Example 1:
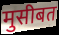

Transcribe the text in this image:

मुसीबत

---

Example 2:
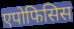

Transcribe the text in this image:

एपोफिसिस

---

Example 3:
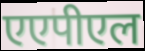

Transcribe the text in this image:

एएपीएल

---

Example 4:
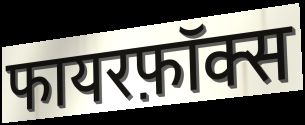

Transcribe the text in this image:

फायरफ़ॉक्स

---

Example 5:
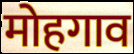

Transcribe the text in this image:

मोहगाव